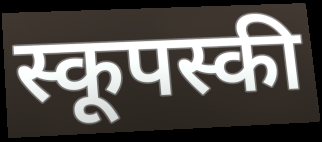
स्कूपस्की